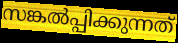
സങ്കൽപ്പിക്കുന്നത്